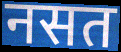
नसत